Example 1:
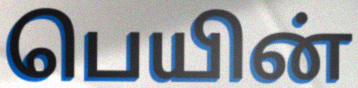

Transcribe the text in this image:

பெயின்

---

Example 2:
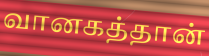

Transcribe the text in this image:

வானகத்தான்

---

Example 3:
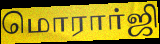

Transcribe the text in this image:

மொரார்ஜி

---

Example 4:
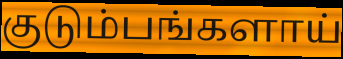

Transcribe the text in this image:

குடும்பங்களாய்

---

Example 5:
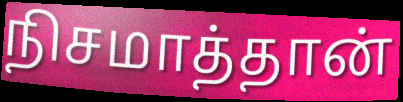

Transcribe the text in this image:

நிசமாத்தான்